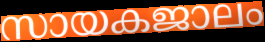
സായകജാലം